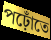
পঢ়োঁতে